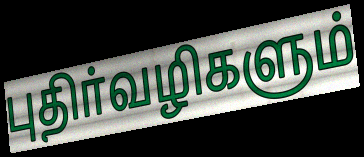
புதிர்வழிகளும்